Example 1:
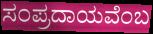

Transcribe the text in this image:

ಸಂಪ್ರದಾಯವೆಂಬ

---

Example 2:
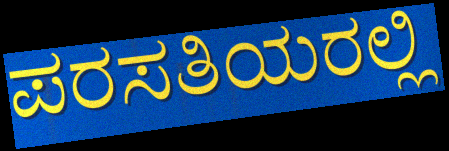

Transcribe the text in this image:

ಪರಸತಿಯರಲ್ಲಿ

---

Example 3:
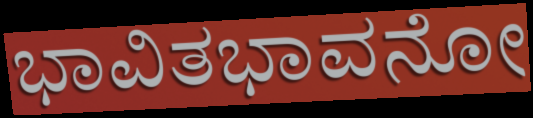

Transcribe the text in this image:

ಭಾವಿತಭಾವನೋ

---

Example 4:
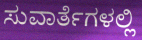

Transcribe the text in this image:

ಸುವಾರ್ತೆಗಳಲ್ಲಿ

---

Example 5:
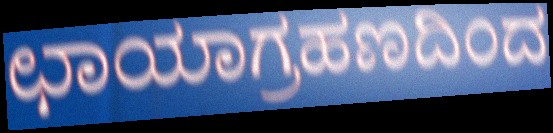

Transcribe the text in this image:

ಛಾಯಾಗ್ರಹಣದಿಂದ